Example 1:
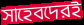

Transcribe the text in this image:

সাহেবদেরই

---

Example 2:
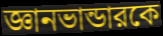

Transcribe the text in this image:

জ্ঞানভান্ডারকে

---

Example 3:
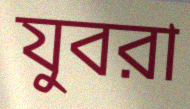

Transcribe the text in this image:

যুবরা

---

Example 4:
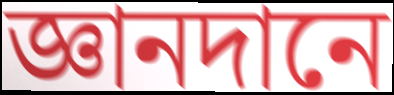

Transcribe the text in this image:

জ্ঞানদানে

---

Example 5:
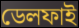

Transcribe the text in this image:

ডেলফাই